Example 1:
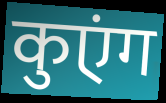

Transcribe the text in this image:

कुएंग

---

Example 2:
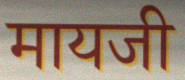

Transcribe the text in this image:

मायजी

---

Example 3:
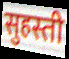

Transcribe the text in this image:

सुहस्ती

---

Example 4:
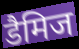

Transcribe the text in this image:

डैमिज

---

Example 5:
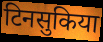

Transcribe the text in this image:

टिनसुकिया